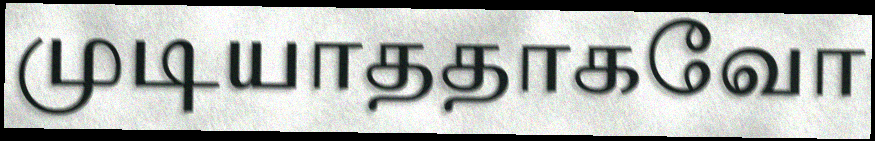
முடியாததாகவோ